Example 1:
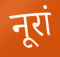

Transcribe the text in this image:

नूरां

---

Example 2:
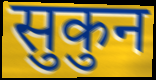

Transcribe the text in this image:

सुकुन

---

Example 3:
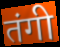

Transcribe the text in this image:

तंगी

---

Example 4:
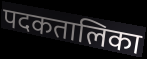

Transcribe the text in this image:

पदकतालिका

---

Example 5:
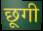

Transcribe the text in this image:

छूगी